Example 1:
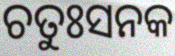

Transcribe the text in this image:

ଚତୁଃସନକ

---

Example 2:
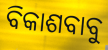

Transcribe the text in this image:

ବିକାଶବାବୁ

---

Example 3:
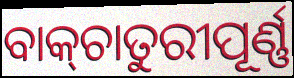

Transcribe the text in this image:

ବାକ୍‌ଚାତୁରୀପୂର୍ଣ୍ଣ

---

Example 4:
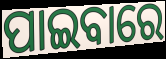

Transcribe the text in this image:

ପାଇବାରେ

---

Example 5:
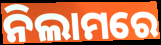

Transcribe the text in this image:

ନିଲାମରେ